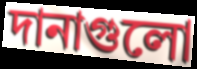
দানাগুলো